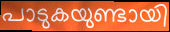
പാടുകയുണ്ടായി